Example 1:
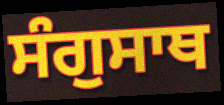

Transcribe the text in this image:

ਸੰਗੁਸਾਥ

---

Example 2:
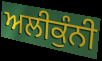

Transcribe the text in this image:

ਅਲੀਕੁੰਨੀ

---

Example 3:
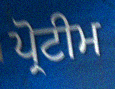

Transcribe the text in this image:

ਪ੍ਰੋਟੀਮ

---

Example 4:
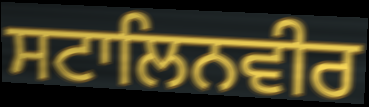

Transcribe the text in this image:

ਸਟਾਲਿਨਵੀਰ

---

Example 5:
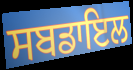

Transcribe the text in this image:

ਸਬਡਾਇਲ